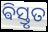
ଵିସ୍ତୃତ